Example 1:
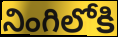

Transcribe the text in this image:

నింగిలోకి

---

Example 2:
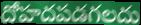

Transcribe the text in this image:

దోహదపడగలదు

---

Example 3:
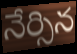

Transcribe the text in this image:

నేర్సిన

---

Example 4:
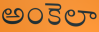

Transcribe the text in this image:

అంకెలా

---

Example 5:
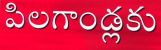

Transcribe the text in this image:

పిలగాండ్లకు